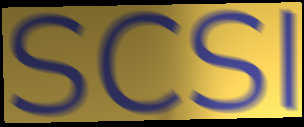
SCSI